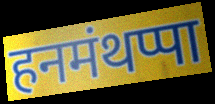
हनमंथप्पा